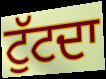
ਟੁੱਟਦਾ